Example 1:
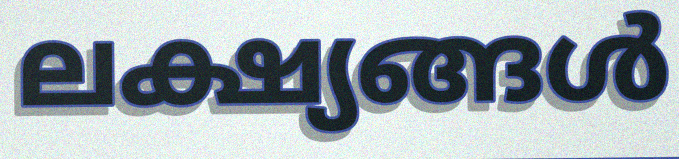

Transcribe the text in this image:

ലക്ഷ്യങ്ങൾ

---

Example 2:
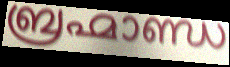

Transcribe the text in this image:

ബ്രഹ്മാണ്ഡ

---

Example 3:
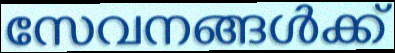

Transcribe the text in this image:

സേവനങ്ങൾക്ക്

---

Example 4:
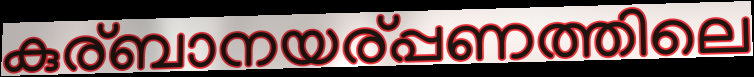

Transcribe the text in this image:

കുര്ബാനയര്പ്പണത്തിലെ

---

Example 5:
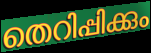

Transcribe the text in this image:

തെറിപ്പിക്കും